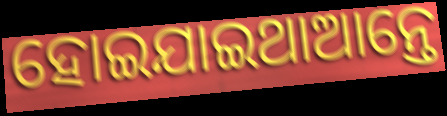
ହୋଇଯାଇଥାଆନ୍ତେ